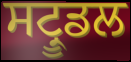
ਸਟ੍ਰੂਡਲ